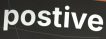
postive